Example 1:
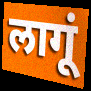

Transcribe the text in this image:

लागूं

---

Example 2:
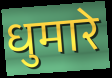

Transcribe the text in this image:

धुमारे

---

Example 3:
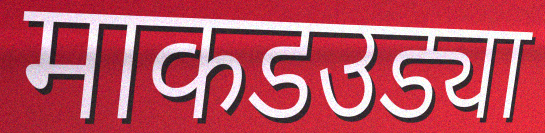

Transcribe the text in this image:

माकडउड्या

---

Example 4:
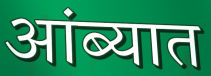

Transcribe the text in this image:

आंब्यात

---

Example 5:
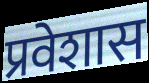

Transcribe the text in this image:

प्रवेशास